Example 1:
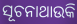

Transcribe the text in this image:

ସୂଚନାଥାଉକି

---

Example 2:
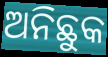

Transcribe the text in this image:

ଅନିଛୁକ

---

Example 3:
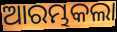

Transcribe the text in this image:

ଆରମ୍ଭକଲା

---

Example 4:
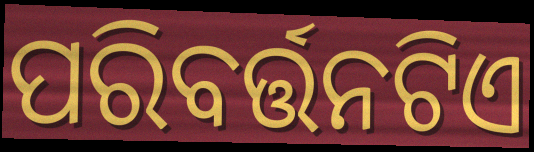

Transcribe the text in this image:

ପରିବର୍ତ୍ତନଟିଏ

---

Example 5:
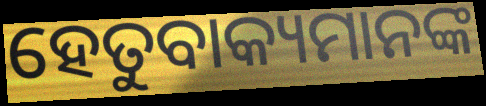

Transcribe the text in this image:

ହେତୁବାକ୍ୟମାନଙ୍କ